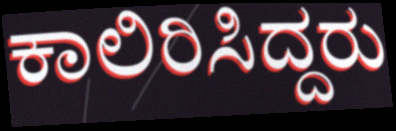
ಕಾಲಿರಿಸಿದ್ದರು